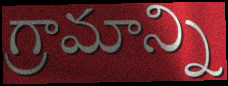
గ్రామాన్ని